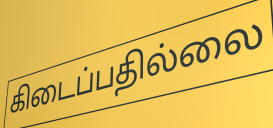
கிடைப்பதில்லை